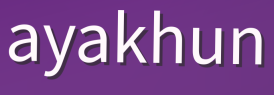
ayakhun